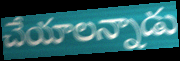
చేయాలన్నాడు